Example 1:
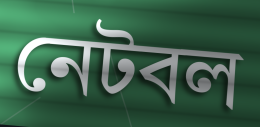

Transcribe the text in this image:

নেটবল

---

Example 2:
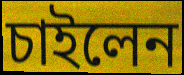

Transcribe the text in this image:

চাইলেন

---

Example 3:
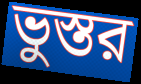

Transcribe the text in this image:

ভুস্তর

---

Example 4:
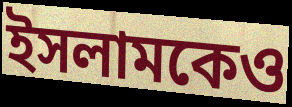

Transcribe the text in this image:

ইসলামকেও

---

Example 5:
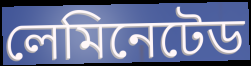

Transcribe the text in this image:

লেমিনেটেড